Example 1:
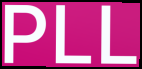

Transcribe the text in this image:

PLL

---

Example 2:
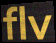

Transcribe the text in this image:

flv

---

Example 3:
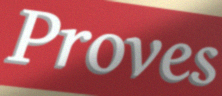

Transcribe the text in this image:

Proves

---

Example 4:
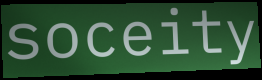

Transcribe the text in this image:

soceity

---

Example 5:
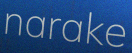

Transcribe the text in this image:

narake